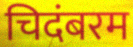
चिदंबरम